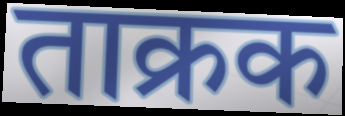
ताक्रक